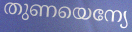
തുണയെന്യേ